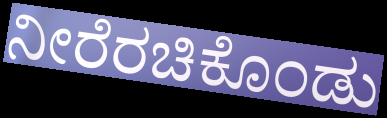
ನೀರೆರಚಿಕೊಂಡು